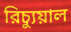
রিচ্যুয়াল